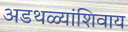
अडथळ्यांशिवाय